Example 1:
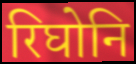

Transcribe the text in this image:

रिघोनि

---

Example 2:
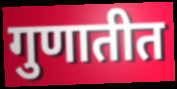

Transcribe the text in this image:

गुणातीत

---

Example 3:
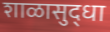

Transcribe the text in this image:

शाळासुद्धा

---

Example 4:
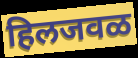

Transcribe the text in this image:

हिलजवळ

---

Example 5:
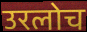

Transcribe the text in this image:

उरलोच